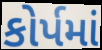
કોર્પમાં